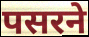
पसरने